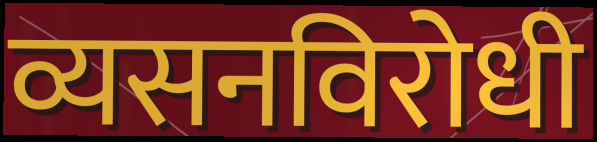
व्यसनविरोधी